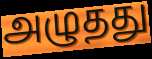
அழுதது